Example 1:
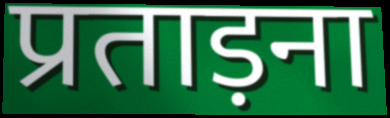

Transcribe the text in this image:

प्रताड़ना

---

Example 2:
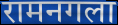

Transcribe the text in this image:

रामनगला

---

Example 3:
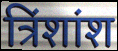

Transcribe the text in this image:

त्रिंशांश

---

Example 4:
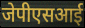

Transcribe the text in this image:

जेपीएसआई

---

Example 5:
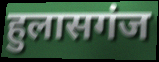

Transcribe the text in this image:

हुलासगंज